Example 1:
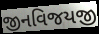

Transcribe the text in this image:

જીનવિજયજી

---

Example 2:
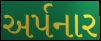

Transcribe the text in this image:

અર્પનાર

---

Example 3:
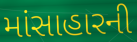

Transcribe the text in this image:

માંસાહારની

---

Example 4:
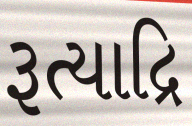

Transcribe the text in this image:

રૂત્યાદ્રિ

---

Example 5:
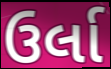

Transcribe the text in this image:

ઉર્લા